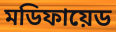
মডিফায়েড